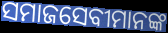
ସମାଜସେବୀମାନଙ୍କ